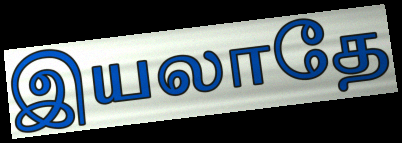
இயலாதே